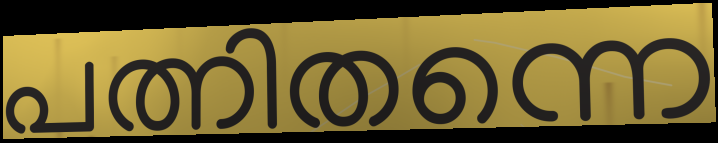
പത്നിതന്നെ